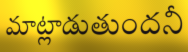
మాట్లాడుతుందనీ